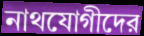
নাথযোগীদের